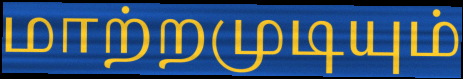
மாற்றமுடியும்